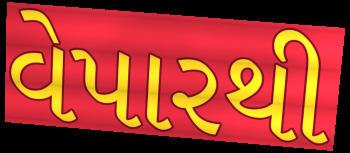
વેપારથી